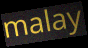
malay